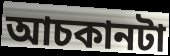
আচকানটা